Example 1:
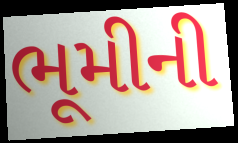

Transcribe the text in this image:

ભૂમીની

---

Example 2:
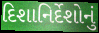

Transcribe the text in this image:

દિશાનિર્દેશોનું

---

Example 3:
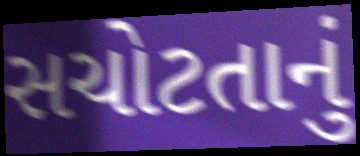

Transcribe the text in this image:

સચોટતાનું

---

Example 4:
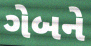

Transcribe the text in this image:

ગેબને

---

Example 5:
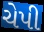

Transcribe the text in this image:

ચેપી